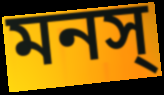
মনস্